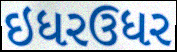
ઇધરઉધર